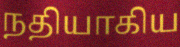
நதியாகிய